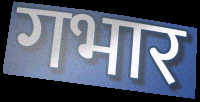
गभार